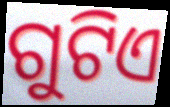
ଗୁଟିଏ